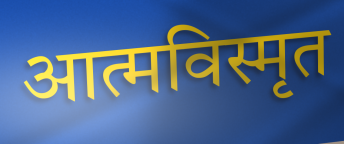
आत्मविस्मृत